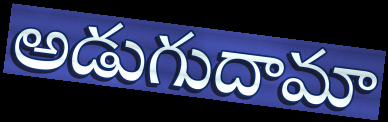
అడుగుదామా